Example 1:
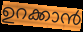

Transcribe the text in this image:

ഉറക്കാൻ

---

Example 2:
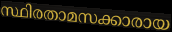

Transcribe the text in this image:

സ്ഥിരതാമസക്കാരായ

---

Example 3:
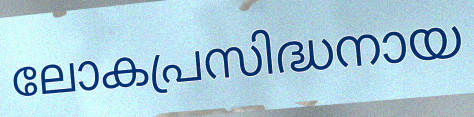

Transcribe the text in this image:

ലോകപ്രസിദ്ധനായ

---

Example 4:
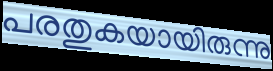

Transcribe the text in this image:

പരതുകയായിരുന്നു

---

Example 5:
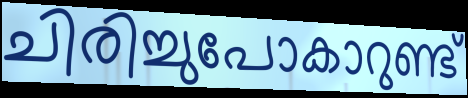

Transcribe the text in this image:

ചിരിച്ചുപോകാറുണ്ട്